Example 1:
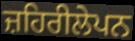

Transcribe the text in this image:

ਜ਼ਹਿਰੀਲੇਪਨ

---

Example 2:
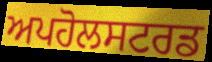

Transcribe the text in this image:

ਅਪਹੋਲਸਟਰਡ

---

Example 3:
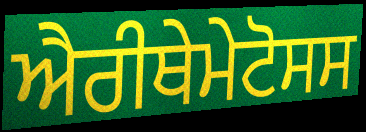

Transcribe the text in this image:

ਐਰੀਥੇਮੇਟੋਸਸ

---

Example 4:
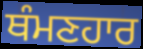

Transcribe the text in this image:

ਥੰਮਣਹਾਰ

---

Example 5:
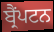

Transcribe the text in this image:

ਬ੍ਰੈਂਪਟਨ